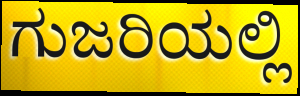
ಗುಜರಿಯಲ್ಲಿ